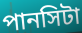
পানসিটা